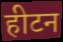
हीटन